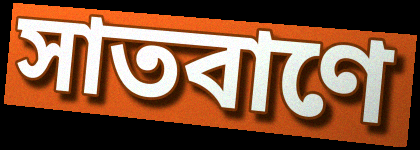
সাতবাণে